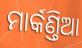
ମାର୍କଣ୍ତିଆ